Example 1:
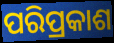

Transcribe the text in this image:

ପରିପ୍ରକାଶ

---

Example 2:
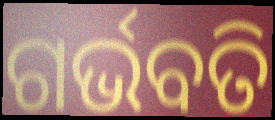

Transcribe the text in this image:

ଗର୍ଭବତି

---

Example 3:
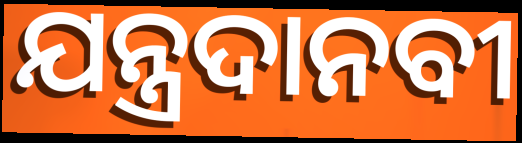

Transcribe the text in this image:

ଯନ୍ତ୍ରଦାନବୀ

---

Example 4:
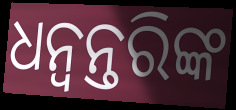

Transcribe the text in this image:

ଧନ୍ୱନ୍ତରିଙ୍କ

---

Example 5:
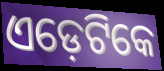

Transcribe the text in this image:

ଏଡ଼େଟିକେ